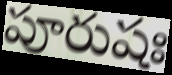
పూరుషః